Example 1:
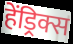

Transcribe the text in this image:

हेंड्रिक्स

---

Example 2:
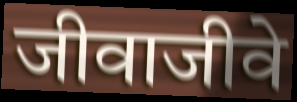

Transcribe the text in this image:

जीवाजीवे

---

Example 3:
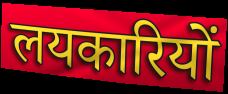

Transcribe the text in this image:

लयकारियों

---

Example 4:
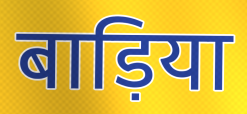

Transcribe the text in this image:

बाड़िया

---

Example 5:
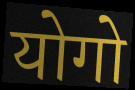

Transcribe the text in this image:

योगो